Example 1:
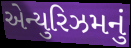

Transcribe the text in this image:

એન્યુરિઝમનું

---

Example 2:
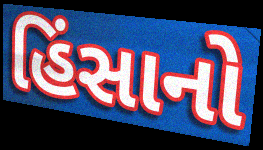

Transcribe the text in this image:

હિંસાનો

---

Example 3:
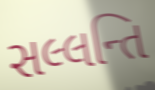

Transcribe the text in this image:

સલ્લન્તિ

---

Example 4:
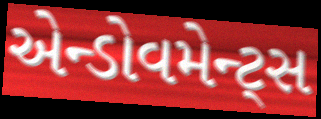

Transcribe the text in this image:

એન્ડોવમેન્ટ્સ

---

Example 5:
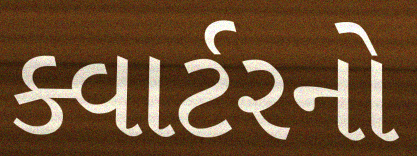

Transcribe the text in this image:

ક્વાર્ટરનો